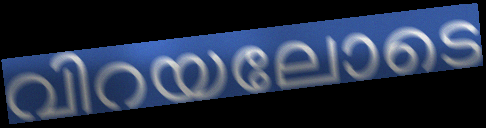
വിറയലോടെ